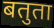
बतुता